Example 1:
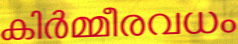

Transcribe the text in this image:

കിർമ്മീരവധം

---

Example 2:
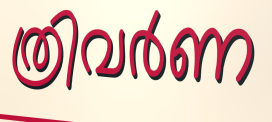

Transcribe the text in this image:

ത്രിവർണ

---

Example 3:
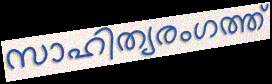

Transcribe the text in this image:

സാഹിത്യരംഗത്ത്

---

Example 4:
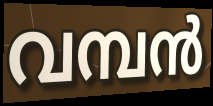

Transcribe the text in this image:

വമ്പൻ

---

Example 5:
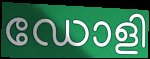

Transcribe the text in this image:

ഡോളി